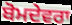
ਬੋਮਦੇਵਰਾ